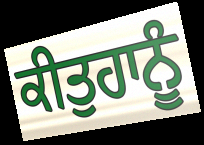
ਕੀਤੁਹਾਨੂੰ